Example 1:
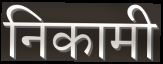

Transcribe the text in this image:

निकामी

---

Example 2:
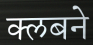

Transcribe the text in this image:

क्लबने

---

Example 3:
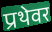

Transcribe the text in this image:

प्रथेवर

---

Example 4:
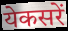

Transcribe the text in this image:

येकसरें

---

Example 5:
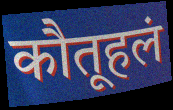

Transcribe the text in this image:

कौतूहलं